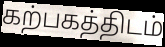
கற்பகத்திடம்